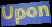
Upon